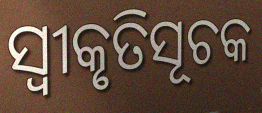
ସ୍ଵୀକୃତିସୂଚକ